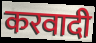
करवादी